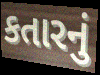
કતારનું